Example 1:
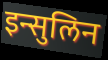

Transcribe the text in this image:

इन्सुलिन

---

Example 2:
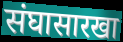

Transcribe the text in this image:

संघासारखा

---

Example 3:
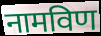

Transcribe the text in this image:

नामविण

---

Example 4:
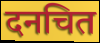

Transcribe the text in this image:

दनचित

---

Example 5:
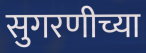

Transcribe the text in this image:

सुगरणीच्या